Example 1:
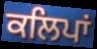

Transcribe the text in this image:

ਕਲਿਪਾਂ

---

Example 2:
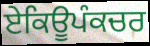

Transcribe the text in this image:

ਏਕਿਊਪੰਕਚਰ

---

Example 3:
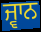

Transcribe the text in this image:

ਜ੍ਵਾਨ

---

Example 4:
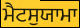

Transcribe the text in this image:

ਮੈਟਸੁਯਾਮਾ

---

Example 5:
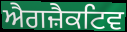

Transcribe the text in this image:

ਐਗਜ਼ੈਕਟਿਵ